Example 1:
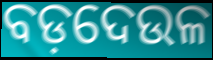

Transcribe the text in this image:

ବଡ଼ଦେଉଳ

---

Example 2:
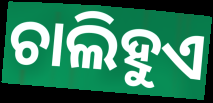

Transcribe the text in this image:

ଚାଲିହୁଏ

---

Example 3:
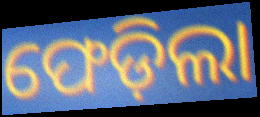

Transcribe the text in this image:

ଫେଡ଼ିଲା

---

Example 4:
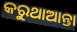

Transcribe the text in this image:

କରୁଥାଆନ୍ତା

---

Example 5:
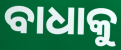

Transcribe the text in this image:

ବାଧାକୁ